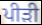
ਪੀੜੀ